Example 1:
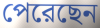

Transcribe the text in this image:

পেরেছেন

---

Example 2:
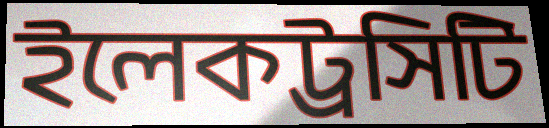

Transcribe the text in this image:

ইলেকট্রসিটি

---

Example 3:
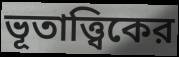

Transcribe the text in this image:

ভূতাত্ত্বিকের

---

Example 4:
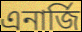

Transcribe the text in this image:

এনার্জি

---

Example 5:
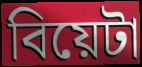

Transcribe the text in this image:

বিয়েটা